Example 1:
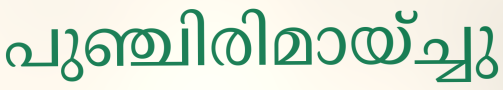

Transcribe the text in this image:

പുഞ്ചിരിമായ്ച്ചു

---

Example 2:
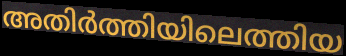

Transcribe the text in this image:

അതിർത്തിയിലെത്തിയ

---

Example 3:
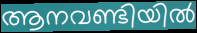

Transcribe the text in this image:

ആനവണ്ടിയിൽ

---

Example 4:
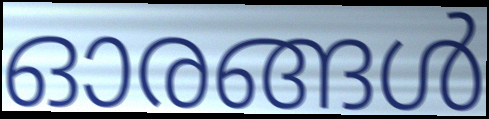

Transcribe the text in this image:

ഓരങ്ങൾ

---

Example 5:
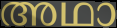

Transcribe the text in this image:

അഥാ